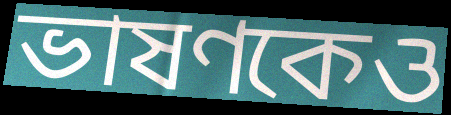
ভাষণকেও